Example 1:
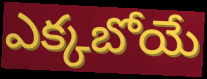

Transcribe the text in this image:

ఎక్కబోయే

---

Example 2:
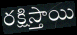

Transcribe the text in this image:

రక్షిస్తాయి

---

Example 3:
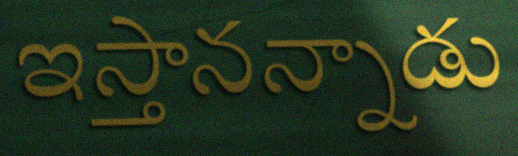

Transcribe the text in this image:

ఇస్తానన్నాడు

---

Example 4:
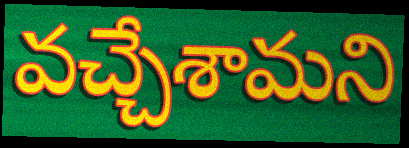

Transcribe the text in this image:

వచ్చేశామని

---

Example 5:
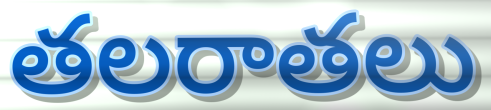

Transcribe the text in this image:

తలరాతలు